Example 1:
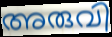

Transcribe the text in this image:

അരുവി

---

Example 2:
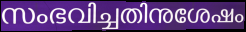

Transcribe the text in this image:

സംഭവിച്ചതിനുശേഷം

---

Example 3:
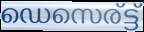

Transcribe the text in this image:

ഡെസെര്ട്ട്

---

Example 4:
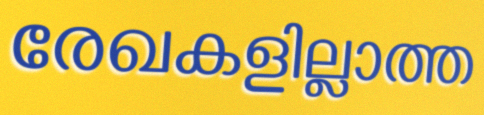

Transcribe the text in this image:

രേഖകളില്ലാത്ത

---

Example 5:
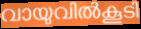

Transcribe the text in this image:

വായുവിൽകൂടി